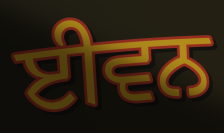
ਈਵਨ